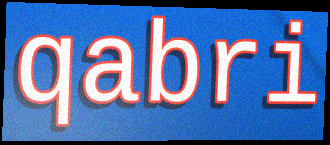
qabri